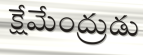
క్షేమేంద్రుడు